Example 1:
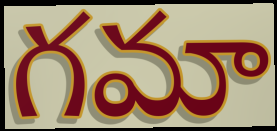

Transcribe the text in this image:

గమా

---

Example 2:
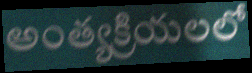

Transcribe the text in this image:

అంత్యక్రియలలో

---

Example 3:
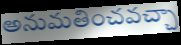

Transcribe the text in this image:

అనుమతించవచ్చా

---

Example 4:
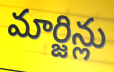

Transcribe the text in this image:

మార్జిన్లు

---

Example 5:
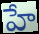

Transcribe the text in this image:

హే